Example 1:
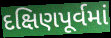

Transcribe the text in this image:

દક્ષિણપૂર્વમાં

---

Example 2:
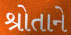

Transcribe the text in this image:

શ્રોતાને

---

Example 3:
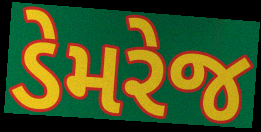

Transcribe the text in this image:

ડેમરેજ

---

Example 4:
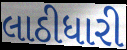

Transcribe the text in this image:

લાઠીધારી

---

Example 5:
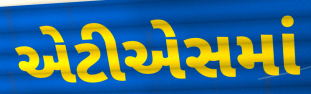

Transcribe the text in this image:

એટીએસમાં